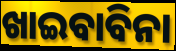
ଖାଇବାବିନା